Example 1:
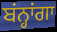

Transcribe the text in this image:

ਬਂਨ੍ਹਾਂਗਾ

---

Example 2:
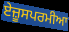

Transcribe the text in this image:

ਏਜ਼ੂਸਪਰਮੀਆ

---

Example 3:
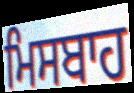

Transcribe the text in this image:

ਮਿਸਬਾਹ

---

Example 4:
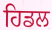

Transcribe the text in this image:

ਹਿਡਲ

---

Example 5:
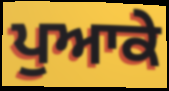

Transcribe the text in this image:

ਪੁਆਕੇ